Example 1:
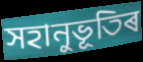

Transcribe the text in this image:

সহানুভূতিৰ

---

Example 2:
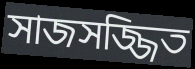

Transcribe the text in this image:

সাজসজ্জিত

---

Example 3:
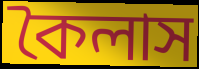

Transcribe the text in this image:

কৈলাস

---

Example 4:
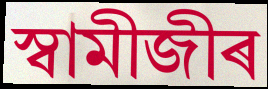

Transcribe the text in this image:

স্বামীজীৰ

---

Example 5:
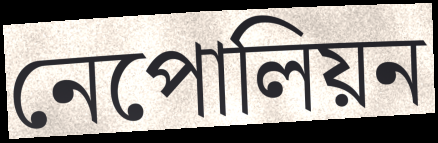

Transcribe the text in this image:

নেপোলিয়ন